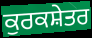
ਕੁਰਕਸ਼ੇਤਰ